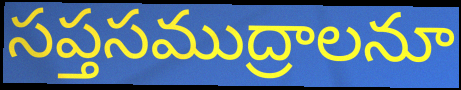
సప్తసముద్రాలనూ